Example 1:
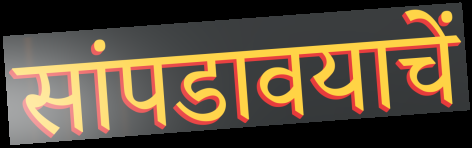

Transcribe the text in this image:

सांपडावयाचें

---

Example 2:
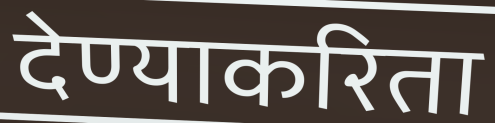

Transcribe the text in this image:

देण्याकरिता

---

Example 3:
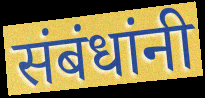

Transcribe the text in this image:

संबंधांनी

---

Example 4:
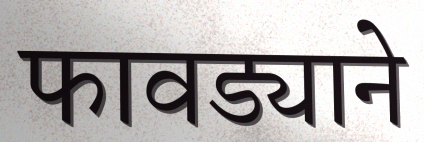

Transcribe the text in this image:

फावड्याने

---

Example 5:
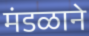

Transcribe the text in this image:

मंडळाने